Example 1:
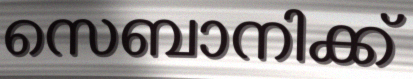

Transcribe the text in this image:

സെബാനിക്ക്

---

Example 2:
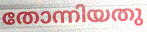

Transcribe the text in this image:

തോന്നിയതു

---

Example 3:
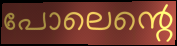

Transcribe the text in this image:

പോലെന്റെ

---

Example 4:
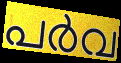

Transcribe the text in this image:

പർവ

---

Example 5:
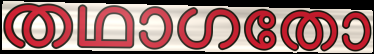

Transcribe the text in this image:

തഥാഗതോ